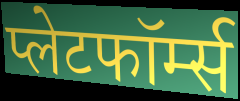
प्लेटफॉर्म्स